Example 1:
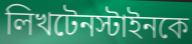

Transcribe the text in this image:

লিখটেনস্টাইনকে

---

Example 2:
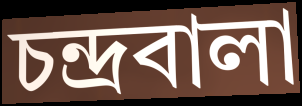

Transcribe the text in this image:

চন্দ্রবালা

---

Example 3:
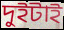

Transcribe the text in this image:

দুইটাই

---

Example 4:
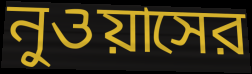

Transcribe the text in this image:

নুওয়াসের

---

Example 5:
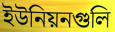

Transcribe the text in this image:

ইউনিয়নগুলি